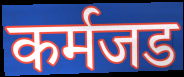
कर्मजड